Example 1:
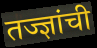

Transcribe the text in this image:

तज्ज्ञांची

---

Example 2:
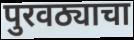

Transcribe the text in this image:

पुरवठ्याचा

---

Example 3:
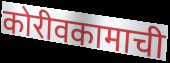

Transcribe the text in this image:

कोरीवकामाची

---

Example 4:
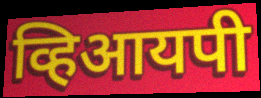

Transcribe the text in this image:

व्हिआयपी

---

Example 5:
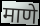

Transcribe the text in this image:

माणे